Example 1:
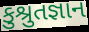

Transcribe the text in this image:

કુશ્રુતજ્ઞાન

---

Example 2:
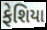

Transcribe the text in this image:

ફેશિયા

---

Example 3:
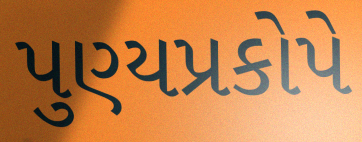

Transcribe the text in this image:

પુણ્યપ્રકોપે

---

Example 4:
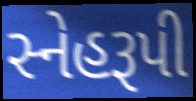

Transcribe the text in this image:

સ્નેહરૂપી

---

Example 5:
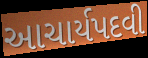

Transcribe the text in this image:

આચાર્યપદવી